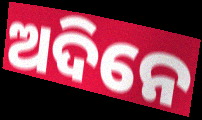
ଅଦିନେ